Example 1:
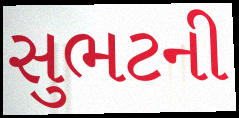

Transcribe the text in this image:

સુભટની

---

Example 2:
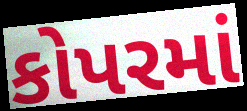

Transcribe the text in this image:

કોપરમાં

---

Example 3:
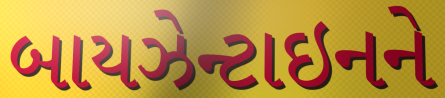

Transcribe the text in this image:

બાયઝેન્ટાઇનને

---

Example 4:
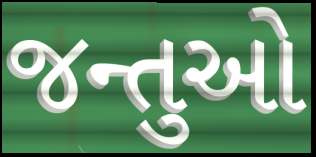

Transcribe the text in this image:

જન્તુઓ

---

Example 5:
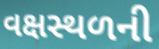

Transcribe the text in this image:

વક્ષસ્થળની